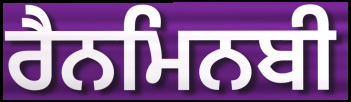
ਰੈਨਮਿਨਬੀ